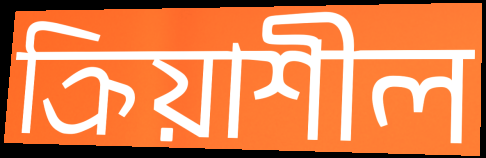
ক্রিয়াশীল